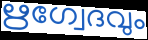
ഋഗ്വേദവും